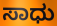
ಸಾಧು